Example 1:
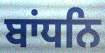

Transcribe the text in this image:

ਬਾਂਧਨਿ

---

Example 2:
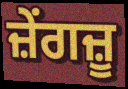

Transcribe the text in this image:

ਜ਼ੇਂਗਜ਼ੂ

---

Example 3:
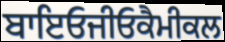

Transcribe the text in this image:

ਬਾਇਓਜੀਓਕੈਮੀਕਲ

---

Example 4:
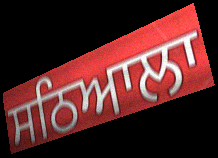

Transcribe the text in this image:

ਸਠਿਆਲਾ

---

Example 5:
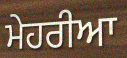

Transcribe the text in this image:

ਮੇਹਰੀਆ